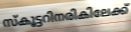
സ്കൂട്ടറിനരികിലേക്ക്